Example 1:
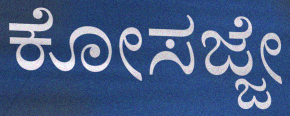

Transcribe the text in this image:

ಕೋಸಜ್ಜೇ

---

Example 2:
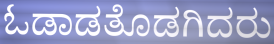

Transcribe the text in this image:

ಓಡಾಡತೊಡಗಿದರು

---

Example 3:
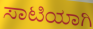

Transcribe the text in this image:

ಸಾಟಿಯಾಗಿ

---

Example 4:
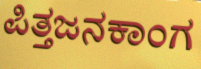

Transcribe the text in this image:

ಪಿತ್ತಜನಕಾಂಗ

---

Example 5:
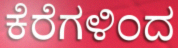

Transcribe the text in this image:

ಕೆರೆಗಳಿಂದ